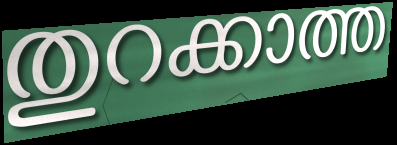
തുറക്കാത്ത